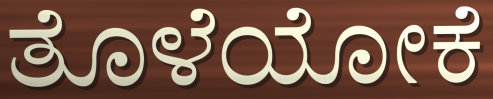
ತೊಳೆಯೋಕೆ